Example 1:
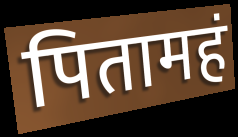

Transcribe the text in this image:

पितामहं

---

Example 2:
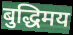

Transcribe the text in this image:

बुद्धिमय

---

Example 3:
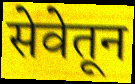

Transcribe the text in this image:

सेवेतून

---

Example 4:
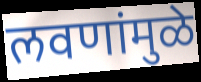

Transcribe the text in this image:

लवणांमुळे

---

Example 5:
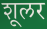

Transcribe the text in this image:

शूलर